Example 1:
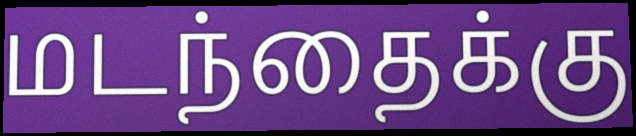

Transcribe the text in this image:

மடந்தைக்கு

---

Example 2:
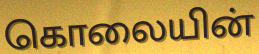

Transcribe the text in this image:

கொலையின்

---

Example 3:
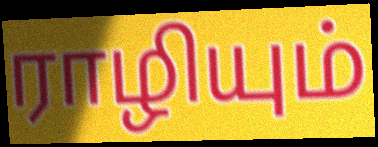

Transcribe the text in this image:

ராழியும்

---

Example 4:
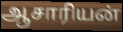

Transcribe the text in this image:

ஆசாரியன்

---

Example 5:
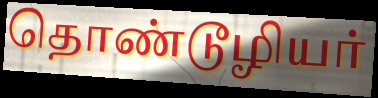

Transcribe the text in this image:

தொண்டூழியர்